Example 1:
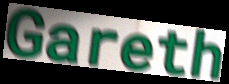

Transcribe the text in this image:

Gareth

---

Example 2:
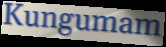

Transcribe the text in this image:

Kungumam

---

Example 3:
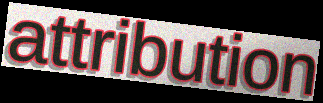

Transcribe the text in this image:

attribution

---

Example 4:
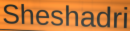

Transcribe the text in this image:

Sheshadri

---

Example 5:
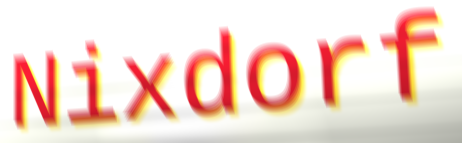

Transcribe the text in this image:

Nixdorf